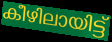
കീഴിലായിട്ട്